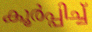
കൂർപ്പിച്ച്